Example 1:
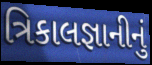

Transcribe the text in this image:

ત્રિકાલજ્ઞાનીનું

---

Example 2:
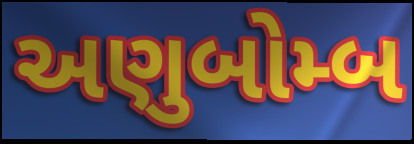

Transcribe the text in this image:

અણુબોમ્બ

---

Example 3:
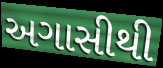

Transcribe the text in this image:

અગાસીથી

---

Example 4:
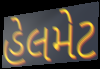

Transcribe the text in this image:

હેલમેટ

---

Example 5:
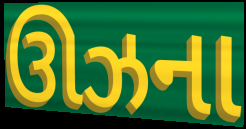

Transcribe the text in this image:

ઊઝના